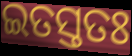
ଇତସ୍ତତଃ